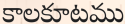
కాలకూటము